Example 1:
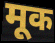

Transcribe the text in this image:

मूक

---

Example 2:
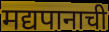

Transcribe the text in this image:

मद्यपानाची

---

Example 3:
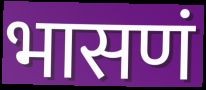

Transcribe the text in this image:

भासणं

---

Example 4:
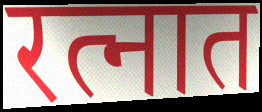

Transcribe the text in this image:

रत्नात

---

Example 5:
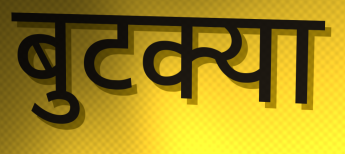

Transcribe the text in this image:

बुटक्या